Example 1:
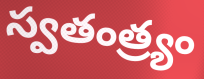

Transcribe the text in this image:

స్వతంత్ర్యం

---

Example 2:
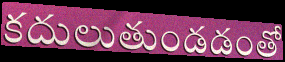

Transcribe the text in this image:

కదులుతుండడంతో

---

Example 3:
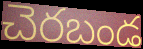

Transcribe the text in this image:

చెరబండ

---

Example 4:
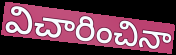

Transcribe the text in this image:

విచారించినా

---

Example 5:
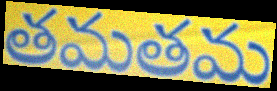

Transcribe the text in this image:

తమతమ